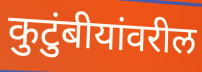
कुटुंबीयांवरील